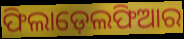
ଫିଲାଡ଼େଲଫିଆର